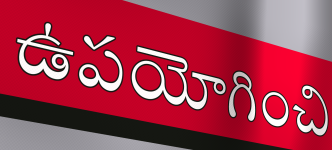
ఉపయోగించి